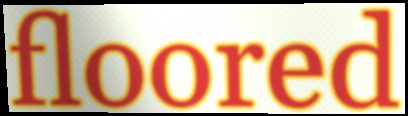
floored